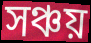
সঞ্চয়